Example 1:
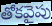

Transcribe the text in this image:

తోకవైపు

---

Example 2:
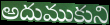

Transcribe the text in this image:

అదుముకుని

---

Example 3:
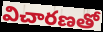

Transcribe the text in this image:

విచారణతో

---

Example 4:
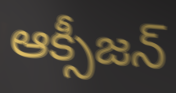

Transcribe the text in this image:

ఆక్సీజన్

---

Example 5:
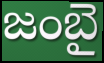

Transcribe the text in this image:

జంబై